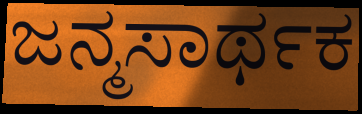
ಜನ್ಮಸಾರ್ಥಕ